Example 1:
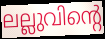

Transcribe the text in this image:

ലല്ലുവിന്റെ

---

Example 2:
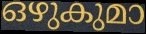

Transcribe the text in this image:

ഒഴുകുമാ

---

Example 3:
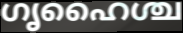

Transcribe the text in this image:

ഗൃഹൈശ്ച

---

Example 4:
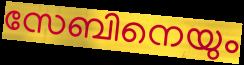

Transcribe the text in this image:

സേബിനെയും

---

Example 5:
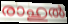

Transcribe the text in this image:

രാഹുൽ